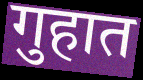
गुहात